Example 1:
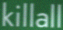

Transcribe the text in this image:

killall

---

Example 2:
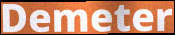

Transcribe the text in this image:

Demeter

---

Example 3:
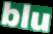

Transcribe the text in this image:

blu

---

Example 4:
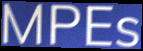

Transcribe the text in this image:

MPEs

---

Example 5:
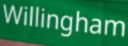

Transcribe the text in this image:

Willingham